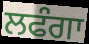
ਲਫੰਗਾ